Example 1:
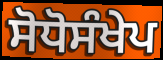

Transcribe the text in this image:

ਸੋਧੋਸੰਖੇਪ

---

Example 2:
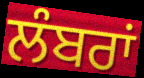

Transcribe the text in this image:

ਲੰਬਰਾਂ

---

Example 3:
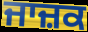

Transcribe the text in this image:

ਜਾਜ਼ਕ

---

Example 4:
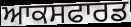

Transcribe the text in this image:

ਆਕਸਫਾਰਡ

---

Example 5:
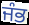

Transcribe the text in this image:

ਜੰਭ